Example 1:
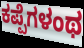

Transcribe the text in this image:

ಕಪ್ಪೆಗಳಂಥ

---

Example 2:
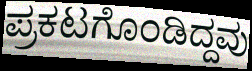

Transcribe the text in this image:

ಪ್ರಕಟಗೊಂಡಿದ್ದವು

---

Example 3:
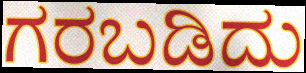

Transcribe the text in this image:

ಗರಬಡಿದು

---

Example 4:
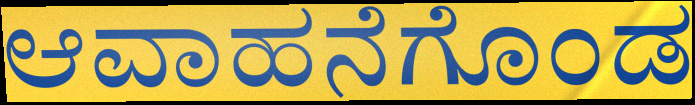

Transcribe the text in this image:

ಆವಾಹನೆಗೊಂಡ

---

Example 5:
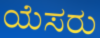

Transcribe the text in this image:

ಯೆಸರು